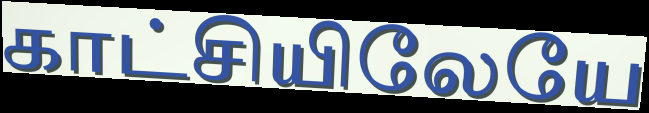
காட்சியிலேயே